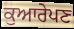
ਕੁਆਰੇਪਣ